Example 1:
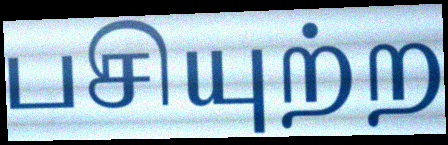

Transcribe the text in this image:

பசியுற்ற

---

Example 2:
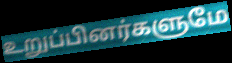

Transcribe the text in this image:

உறுப்பினர்களுமே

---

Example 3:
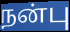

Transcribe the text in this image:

நன்பு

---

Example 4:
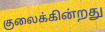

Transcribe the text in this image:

குலைக்கின்றது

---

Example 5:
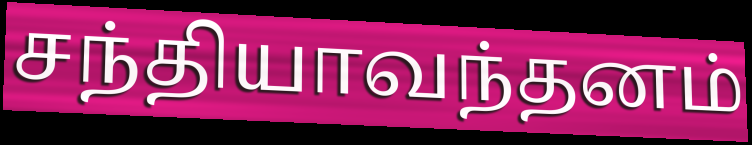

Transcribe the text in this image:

சந்தியாவந்தனம்